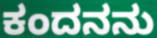
ಕಂದನನು